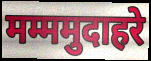
मम्ममुदाहरे